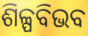
ଶିଳ୍ପବିଭବ